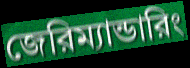
জেরিম্যান্ডারিং